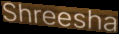
Shreesha